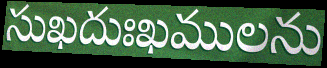
సుఖదుఃఖములను